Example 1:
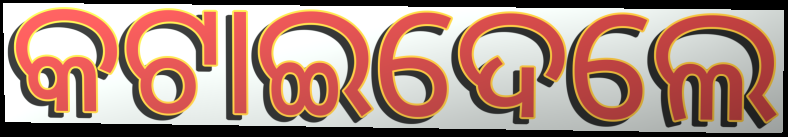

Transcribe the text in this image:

କଟାଇଦେଲେ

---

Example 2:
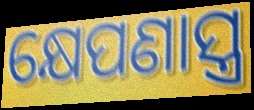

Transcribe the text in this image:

କ୍ଷେପଣାସ୍ତ୍ର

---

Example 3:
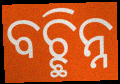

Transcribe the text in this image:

ବଚ୍ଛିନ୍ନ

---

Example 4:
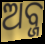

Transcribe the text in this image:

ଅବ୍ଜ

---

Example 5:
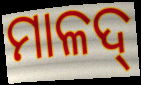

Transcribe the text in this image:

ମାଳଦ୍